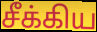
சீக்கிய